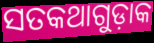
ସତକଥାଗୁଡ଼ାକ